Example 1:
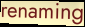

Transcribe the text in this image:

renaming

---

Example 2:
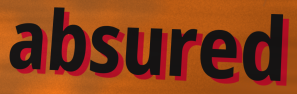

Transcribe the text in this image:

absured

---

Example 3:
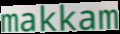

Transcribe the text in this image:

makkam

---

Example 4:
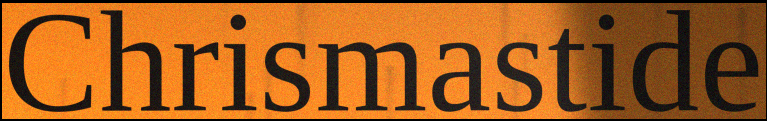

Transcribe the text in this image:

Chrismastide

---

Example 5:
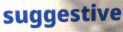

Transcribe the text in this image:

suggestive